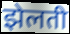
झेलती